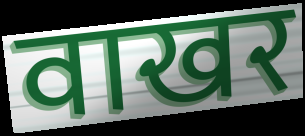
वाखर